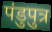
पंडुपुत्र